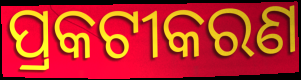
ପ୍ରକଟୀକରଣ